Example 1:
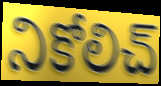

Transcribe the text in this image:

నికోలిచ్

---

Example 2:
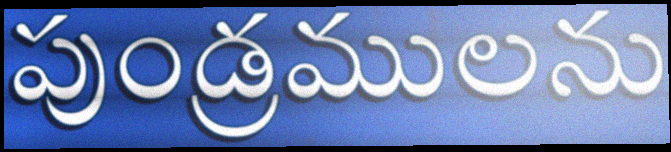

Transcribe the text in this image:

పుండ్రములను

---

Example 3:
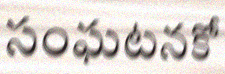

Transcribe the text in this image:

సంఘటనకో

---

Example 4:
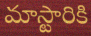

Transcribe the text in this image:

మాస్టారికి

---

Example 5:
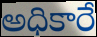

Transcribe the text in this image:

అధికారే